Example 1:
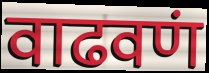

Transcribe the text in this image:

वाढवणं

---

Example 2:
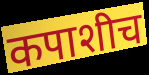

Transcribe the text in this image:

कपाशीच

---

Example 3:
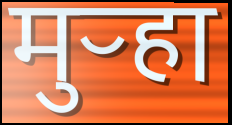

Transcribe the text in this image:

मुऱ्हा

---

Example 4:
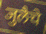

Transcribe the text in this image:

जुलैचे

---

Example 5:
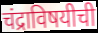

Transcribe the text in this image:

चंद्राविषयीची